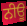
ਨੀਊ